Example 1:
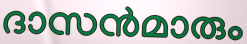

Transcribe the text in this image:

ദാസൻമാരും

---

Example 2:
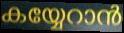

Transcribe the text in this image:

കയ്യേറാൻ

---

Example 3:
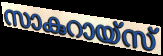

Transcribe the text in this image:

സാകുറായ്സ്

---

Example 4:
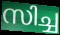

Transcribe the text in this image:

സിച്ച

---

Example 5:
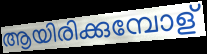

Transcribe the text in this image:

ആയിരിക്കുമ്പോള്